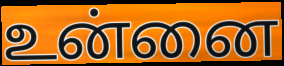
உன்னை